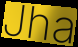
Jha